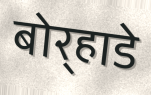
बोर्‍हाडे